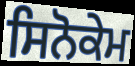
ਸਿਨੋਕੇਮ